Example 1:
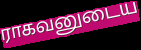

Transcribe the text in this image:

ராகவனுடைய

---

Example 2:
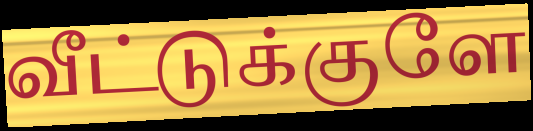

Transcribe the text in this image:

வீட்டுக்குளே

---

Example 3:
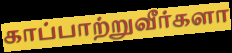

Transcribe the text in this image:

காப்பாற்றுவீர்களா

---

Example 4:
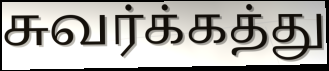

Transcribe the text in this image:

சுவர்க்கத்து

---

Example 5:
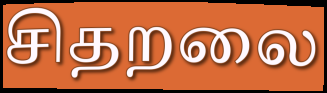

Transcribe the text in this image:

சிதறலை